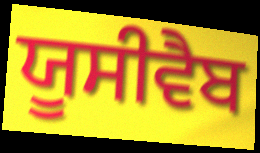
ਯੂਸੀਵੈਬ